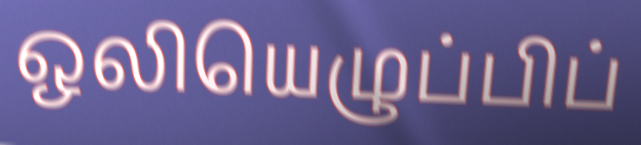
ஒலியெழுப்பிப்